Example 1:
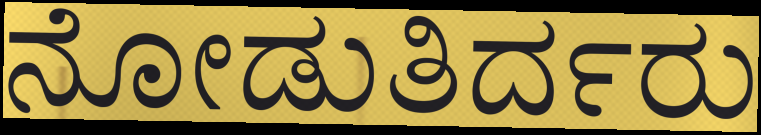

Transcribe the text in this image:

ನೋಡುತಿರ್ದರು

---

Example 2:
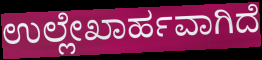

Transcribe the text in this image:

ಉಲ್ಲೇಖಾರ್ಹವಾಗಿದೆ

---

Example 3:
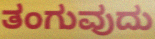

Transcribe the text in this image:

ತಂಗುವುದು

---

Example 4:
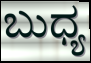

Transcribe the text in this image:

ಬುಧ್ಯ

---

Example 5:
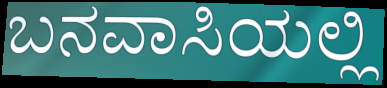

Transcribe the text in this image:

ಬನವಾಸಿಯಲ್ಲಿ